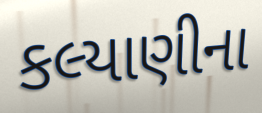
કલ્યાણીના